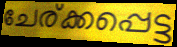
ചേര്ക്കപ്പെട്ട